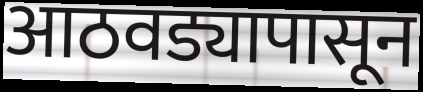
आठवड्यापासून